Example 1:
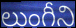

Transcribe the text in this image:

లుంగీని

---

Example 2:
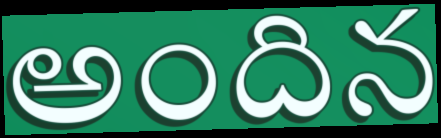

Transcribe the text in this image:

అందిన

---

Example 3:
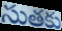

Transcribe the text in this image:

సుతకు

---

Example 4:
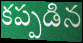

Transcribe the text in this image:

కప్పడిన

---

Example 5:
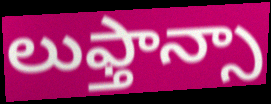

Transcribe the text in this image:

లుఫ్తాన్సా